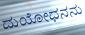
ದುಯೋಧನನು